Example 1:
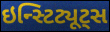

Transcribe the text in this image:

ઇન્સ્ટિટ્યૂટ્સ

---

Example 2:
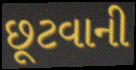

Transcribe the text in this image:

છૂટવાની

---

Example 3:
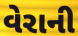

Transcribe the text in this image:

વેરાની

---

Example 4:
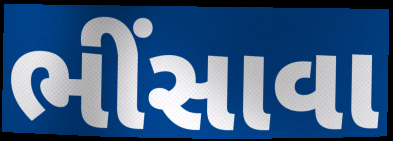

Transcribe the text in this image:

ભીંસાવા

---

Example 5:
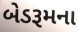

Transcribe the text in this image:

બેડરૂમના